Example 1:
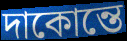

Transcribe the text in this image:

দাকোন্তে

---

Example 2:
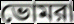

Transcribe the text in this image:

ভোমরা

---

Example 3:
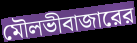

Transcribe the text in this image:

মৌলভীবাজারের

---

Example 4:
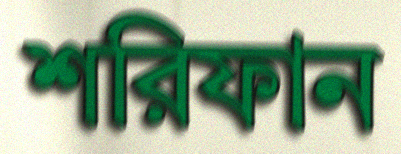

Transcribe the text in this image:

শরিফান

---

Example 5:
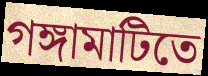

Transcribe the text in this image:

গঙ্গামাটিতে